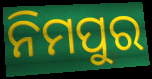
ନିମପୁର